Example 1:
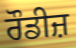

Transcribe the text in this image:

ਰੌਡੀਜ਼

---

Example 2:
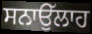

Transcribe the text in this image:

ਸਨਾਉੱਲਾਹ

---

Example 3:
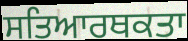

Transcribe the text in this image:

ਸਤਿਆਰਥਕਤਾ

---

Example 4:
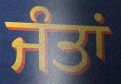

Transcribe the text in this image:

ਜੰਤਾਂ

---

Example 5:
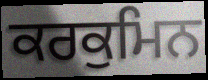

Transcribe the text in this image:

ਕਰਕੁਮਿਨ